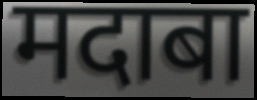
मदाबा